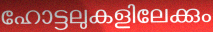
ഹോട്ടലുകളിലേക്കും